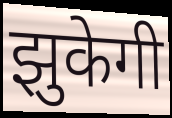
झुकेगी